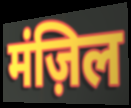
मंज़िल